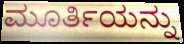
ಮೂರ್ತಿಯನ್ನು